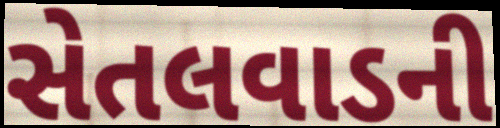
સેતલવાડની